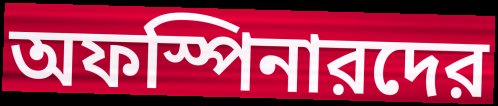
অফস্পিনারদের